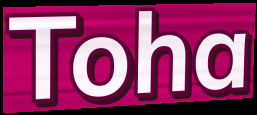
Toha